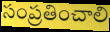
సంప్రతించాలి